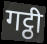
गट्ठी